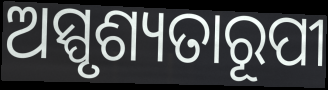
ଅସ୍ପୃଶ୍ୟତାରୂପୀ